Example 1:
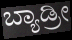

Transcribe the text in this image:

ಬ್ಯಾಡ್ರೀ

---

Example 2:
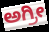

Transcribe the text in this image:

ಅಗ್ರೀ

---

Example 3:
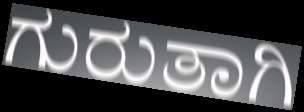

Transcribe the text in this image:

ಗುರುತಾಗಿ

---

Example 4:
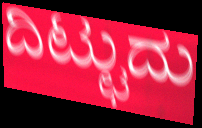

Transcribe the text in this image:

ದಿಟ್ಟುದು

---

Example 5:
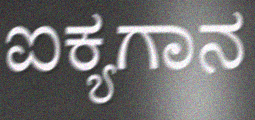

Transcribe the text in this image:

ಐಕ್ಯಗಾನ